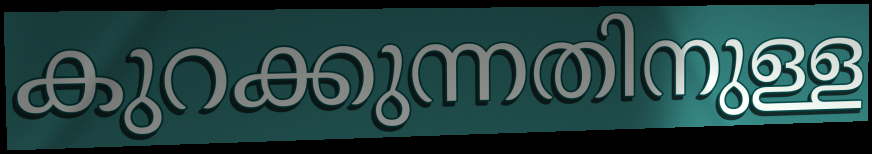
കുറക്കുന്നതിനുള്ള